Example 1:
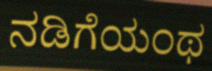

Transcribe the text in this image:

ನಡಿಗೆಯಂಥ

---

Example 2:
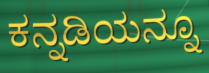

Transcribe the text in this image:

ಕನ್ನಡಿಯನ್ನೂ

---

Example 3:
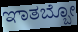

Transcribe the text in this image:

ಞಾತಬ್ಬೋ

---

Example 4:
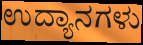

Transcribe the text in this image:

ಉದ್ಯಾನಗಳು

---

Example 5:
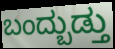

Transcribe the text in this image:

ಬಂದ್ಬುಡ್ತು